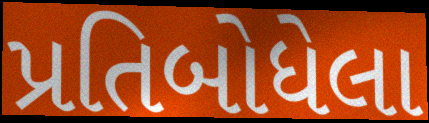
પ્રતિબોધેલા